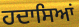
ਹਦਾਸਿਆਂ